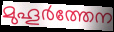
മുഹൂർത്തേന